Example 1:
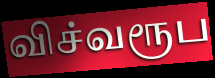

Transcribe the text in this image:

விச்வரூப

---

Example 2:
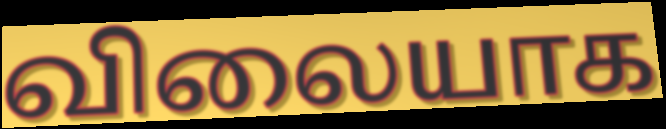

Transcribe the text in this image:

விலையாக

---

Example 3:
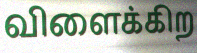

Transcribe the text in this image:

விளைக்கிற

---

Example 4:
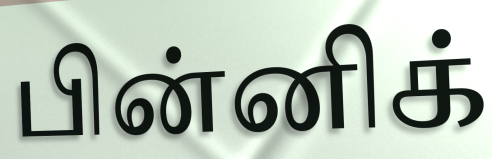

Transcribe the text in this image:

பின்னிக்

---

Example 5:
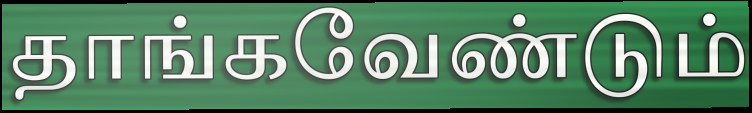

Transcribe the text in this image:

தாங்கவேண்டும்